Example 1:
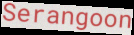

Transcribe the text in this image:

Serangoon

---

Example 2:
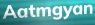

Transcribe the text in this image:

Aatmgyan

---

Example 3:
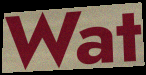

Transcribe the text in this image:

Wat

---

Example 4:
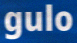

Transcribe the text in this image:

gulo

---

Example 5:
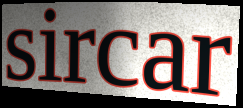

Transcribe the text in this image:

sircar